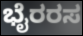
ಭೈರರಸ